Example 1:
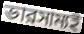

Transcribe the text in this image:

ভারসাম্যই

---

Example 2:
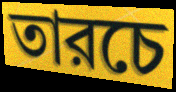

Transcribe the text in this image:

তারচে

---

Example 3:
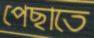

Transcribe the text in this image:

পেছাতে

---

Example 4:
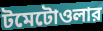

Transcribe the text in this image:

টমেটোওলার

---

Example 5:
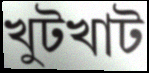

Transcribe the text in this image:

খুটখাট